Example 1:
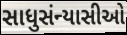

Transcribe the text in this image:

સાધુસંન્યાસીઓ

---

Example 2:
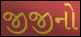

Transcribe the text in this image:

જીજીનો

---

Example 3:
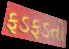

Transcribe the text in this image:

ફડફડતો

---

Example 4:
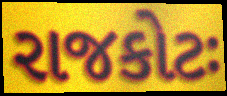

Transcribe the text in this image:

રાજકોટઃ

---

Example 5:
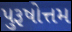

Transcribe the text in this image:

પુરૂષોત્તમ